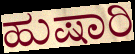
ಹುಷಾರಿ